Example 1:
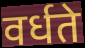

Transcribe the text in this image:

वर्धते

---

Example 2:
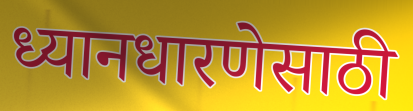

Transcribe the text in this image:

ध्यानधारणेसाठी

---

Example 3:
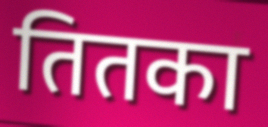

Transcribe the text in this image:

तितका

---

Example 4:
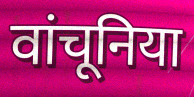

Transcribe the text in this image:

वांचूनिया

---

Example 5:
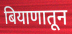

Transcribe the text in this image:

बियाणातून